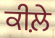
ਕੀਲ਼ੇ